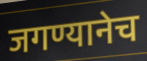
जगण्यानेच